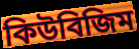
কিউবিজিম